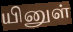
யினுள்